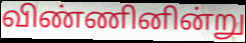
விண்ணினின்று